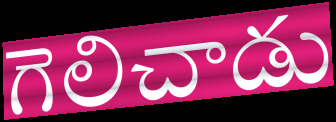
గెలిచాడు